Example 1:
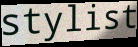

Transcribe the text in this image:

stylist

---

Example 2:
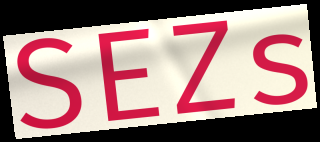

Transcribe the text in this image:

SEZs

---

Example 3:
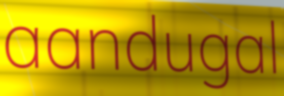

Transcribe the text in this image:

aandugal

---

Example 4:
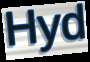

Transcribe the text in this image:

Hyd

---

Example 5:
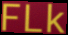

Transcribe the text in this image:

FLk